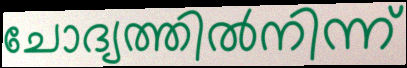
ചോദ്യത്തിൽനിന്ന്